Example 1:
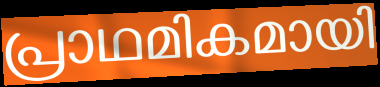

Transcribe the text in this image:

പ്രാഥമികമായി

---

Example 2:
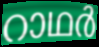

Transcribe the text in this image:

റാഥർ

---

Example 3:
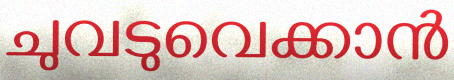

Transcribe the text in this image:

ചുവടുവെക്കാൻ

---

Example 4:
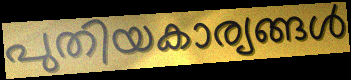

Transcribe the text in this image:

പുതിയകാര്യങ്ങൾ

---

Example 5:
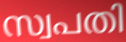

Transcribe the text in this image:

സ്വപതി